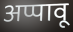
अप्पावू